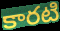
కారటి